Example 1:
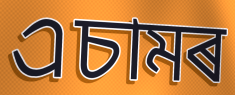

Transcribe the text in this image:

এচামৰ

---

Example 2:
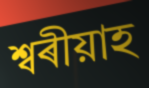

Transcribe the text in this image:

শ্বৰীয়াহ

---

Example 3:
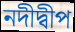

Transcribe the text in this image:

নদীদ্বীপ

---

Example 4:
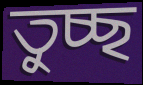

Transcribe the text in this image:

তুচ্ছ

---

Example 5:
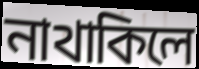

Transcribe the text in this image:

নাথাকিলে